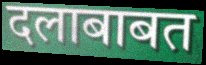
दलाबाबत